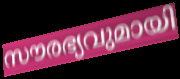
സൗരഭ്യവുമായി